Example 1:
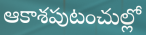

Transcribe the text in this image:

ఆకాశపుటంచుల్లో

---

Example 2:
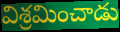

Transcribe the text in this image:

విశ్రమించాడు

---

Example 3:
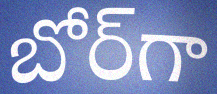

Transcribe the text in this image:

బోర్‌గా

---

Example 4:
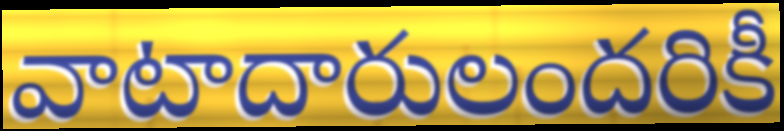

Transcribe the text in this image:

వాటాదారులందరికీ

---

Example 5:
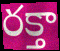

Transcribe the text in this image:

రక్తా